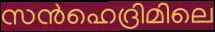
സൻഹെദ്രിമിലെ